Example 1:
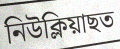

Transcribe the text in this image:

নিউক্লিয়াছত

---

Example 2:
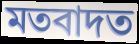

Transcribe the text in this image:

মতবাদত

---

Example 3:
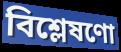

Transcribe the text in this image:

বিশ্লেষণো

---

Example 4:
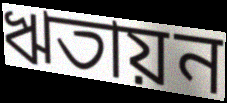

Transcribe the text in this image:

ঋতায়ন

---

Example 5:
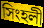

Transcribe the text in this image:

সিংহলী